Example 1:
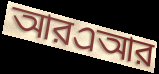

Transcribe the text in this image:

আরএআর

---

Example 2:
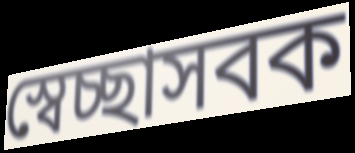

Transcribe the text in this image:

স্বেচ্ছাসবক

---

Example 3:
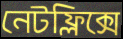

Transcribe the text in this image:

নেটফ্লিক্সে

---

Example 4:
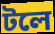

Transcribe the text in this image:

টলে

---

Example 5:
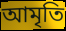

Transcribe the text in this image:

আমৃতি